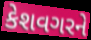
કેશવગરને